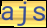
ajs